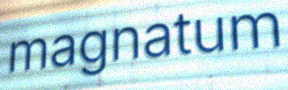
magnatum